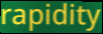
rapidity